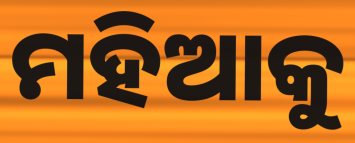
ମହିଆକୁ